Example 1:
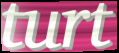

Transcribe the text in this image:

turt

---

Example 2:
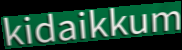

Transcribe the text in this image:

kidaikkum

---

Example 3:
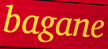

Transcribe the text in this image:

bagane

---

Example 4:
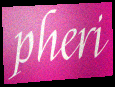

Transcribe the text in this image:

pheri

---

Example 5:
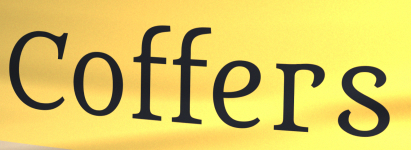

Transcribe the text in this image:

Coffers